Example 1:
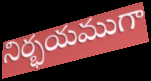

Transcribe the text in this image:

నిర్భయముగా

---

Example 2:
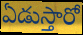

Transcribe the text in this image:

ఏడుస్తారో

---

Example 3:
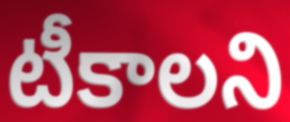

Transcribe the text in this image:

టీకాలని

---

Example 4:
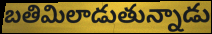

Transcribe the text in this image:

బతిమిలాడుతున్నాడు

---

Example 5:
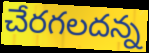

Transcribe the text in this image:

చేరగలదన్న